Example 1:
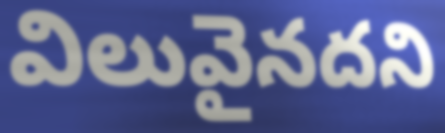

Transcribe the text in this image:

విలువైనదని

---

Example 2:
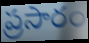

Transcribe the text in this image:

ప్రసారం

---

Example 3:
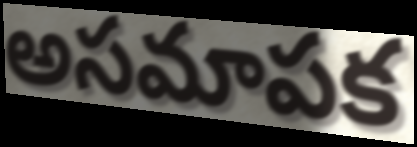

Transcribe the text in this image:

అసమాపక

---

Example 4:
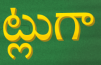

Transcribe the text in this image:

ట్లుగా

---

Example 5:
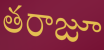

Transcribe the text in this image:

తరాజూ